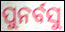
ପୁନର୍ବସୁ